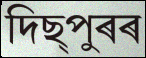
দিছ্পুৰৰ